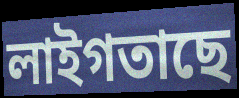
লাইগতাছে